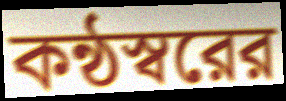
কন্ঠস্বরের